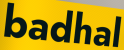
badhal